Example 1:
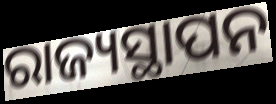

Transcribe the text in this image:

ରାଜ୍ୟସ୍ଥାପନ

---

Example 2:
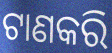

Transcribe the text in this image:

ଟାଣକରି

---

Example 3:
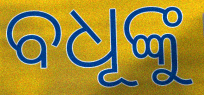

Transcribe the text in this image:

ବଧୂଙ୍କୁ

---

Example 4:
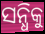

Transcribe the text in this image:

ସନ୍ଧିକୁ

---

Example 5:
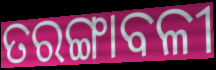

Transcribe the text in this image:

ତରଙ୍ଗାବଳୀ